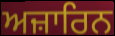
ਅਜ਼ਾਰਿਨ